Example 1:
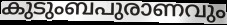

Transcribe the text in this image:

കുടുംബപുരാണവും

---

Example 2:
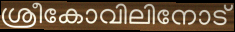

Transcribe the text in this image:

ശ്രീകോവിലിനോട്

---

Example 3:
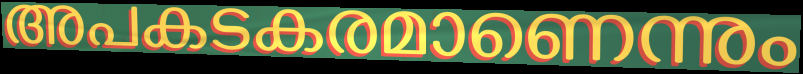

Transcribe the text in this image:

അപകടകരമാണെന്നും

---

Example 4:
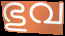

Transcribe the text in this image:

ഭുവ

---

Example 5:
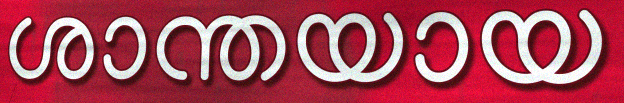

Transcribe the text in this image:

ശാന്തയായ